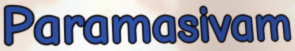
Paramasivam